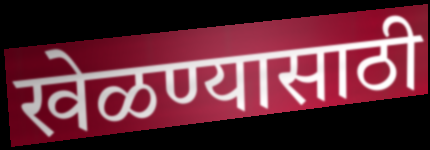
खेळण्यासाठी